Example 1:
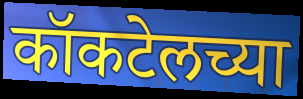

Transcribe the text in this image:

कॉकटेलच्या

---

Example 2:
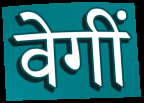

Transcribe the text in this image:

वेगीं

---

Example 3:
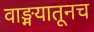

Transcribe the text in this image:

वाङ्मयातूनच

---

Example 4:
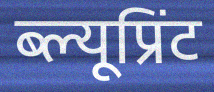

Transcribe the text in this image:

ब्ल्यूप्रिंट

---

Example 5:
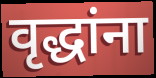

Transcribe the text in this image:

वृद्धांना